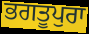
ਭਗਤੂਪੁਰਾ